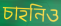
চাহনিও